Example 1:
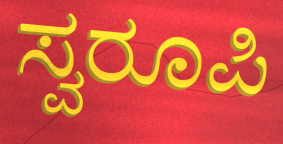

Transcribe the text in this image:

ಸ್ವರೂಪಿ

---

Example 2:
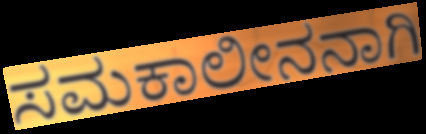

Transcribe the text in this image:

ಸಮಕಾಲೀನನಾಗಿ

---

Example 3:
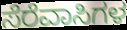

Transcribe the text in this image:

ಸೆರೆವಾಸಿಗಳ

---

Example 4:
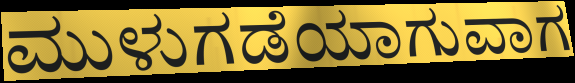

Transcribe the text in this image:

ಮುಳುಗಡೆಯಾಗುವಾಗ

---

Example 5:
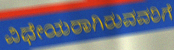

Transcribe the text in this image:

ವಿಧೇಯರಾಗಿರುವವರಿಗೆ